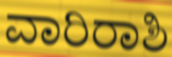
ವಾರಿರಾಶಿ